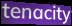
tenacity